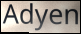
Adyen